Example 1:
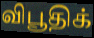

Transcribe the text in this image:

விபூதிக்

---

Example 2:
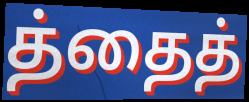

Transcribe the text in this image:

த்தைத்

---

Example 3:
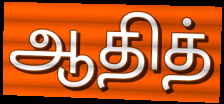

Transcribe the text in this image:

ஆதித்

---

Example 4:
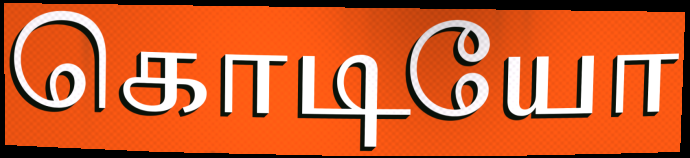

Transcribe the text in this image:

கொடியோ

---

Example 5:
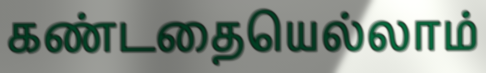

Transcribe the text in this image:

கண்டதையெல்லாம்